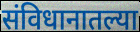
संविधानातल्या